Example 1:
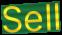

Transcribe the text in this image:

Sell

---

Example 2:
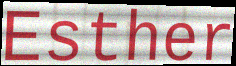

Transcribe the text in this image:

Esther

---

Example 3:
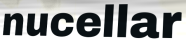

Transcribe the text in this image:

nucellar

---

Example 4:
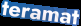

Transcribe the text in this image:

teramat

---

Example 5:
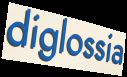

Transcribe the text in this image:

diglossia